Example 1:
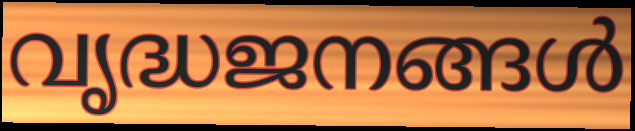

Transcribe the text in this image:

വൃദ്ധജനങ്ങൾ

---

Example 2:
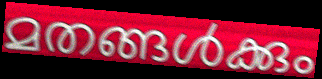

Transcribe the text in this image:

മതങ്ങൾക്കും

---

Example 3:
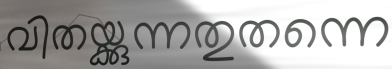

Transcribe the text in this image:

വിതയ്ക്കുന്നതുതന്നെ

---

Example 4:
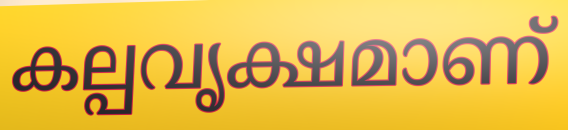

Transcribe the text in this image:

കല്പവൃക്ഷമാണ്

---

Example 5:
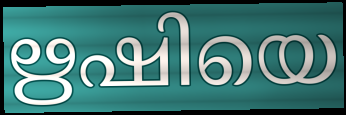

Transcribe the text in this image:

ഋഷിയെ